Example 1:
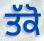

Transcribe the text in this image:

ਤੱਕੋ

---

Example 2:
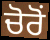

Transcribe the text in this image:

ਚੋਰੋਂ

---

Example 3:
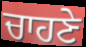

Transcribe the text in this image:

ਚਾਹਣੇ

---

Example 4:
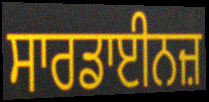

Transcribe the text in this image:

ਸਾਰਡਾਈਨਜ਼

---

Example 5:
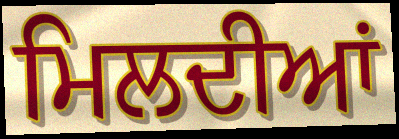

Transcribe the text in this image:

ਮਿਲਦੀਆਂ